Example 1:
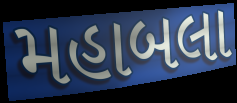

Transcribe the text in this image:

મહાબલા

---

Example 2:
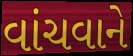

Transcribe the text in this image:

વાંચવાને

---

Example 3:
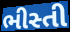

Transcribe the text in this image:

ભીસ્તી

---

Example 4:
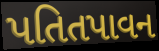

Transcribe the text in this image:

પતિતપાવન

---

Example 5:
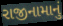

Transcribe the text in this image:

રાજીનામાનું